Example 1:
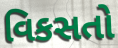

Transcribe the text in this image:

વિકસતો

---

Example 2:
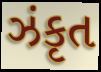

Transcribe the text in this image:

ઝંકૃત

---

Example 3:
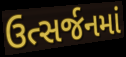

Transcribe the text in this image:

ઉત્સર્જનમાં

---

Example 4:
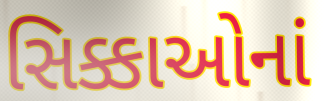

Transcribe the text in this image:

સિક્કાઓનાં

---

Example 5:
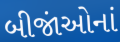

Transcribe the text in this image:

બીજાંઓનાં